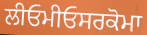
ਲੀਓਮੀਓਸਰਕੋਮਾ